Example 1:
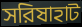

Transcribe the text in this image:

সরিষাহাট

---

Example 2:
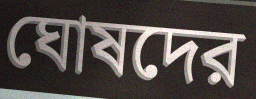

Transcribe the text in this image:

ঘোষদের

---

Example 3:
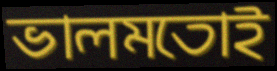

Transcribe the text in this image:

ভালমতোই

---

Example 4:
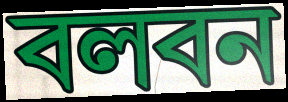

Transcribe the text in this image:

বলবন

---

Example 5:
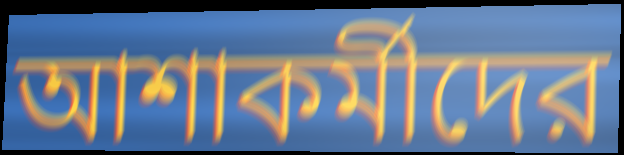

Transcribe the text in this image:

আশাকর্মীদের